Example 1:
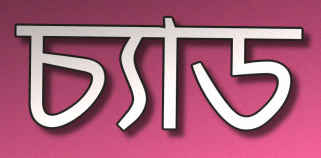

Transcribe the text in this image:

চ্যাড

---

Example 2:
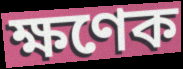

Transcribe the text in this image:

ক্ষণেক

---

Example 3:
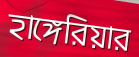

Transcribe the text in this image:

হাঙ্গেরিয়ার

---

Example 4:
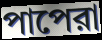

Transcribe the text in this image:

পাপেরা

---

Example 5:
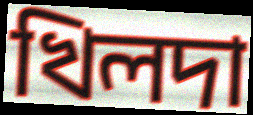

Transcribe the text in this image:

খিলদা